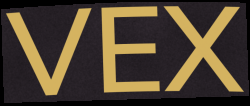
VEX